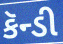
કૅન્ડી